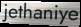
jethaniye